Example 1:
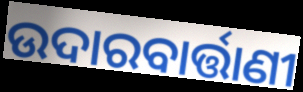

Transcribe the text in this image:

ଉଦାରବାର୍ତ୍ତାଣୀ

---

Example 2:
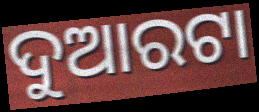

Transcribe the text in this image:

ଦୁଆରଟା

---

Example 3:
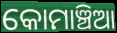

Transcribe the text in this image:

କୋମାଞ୍ଚିଆ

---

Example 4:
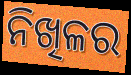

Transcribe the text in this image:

ନିଖିଳର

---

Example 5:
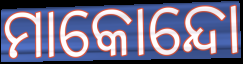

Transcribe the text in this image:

ମାକୋନ୍ଦୋ